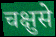
चक्षुसे